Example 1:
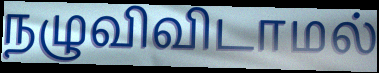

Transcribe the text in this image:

நழுவிவிடாமல்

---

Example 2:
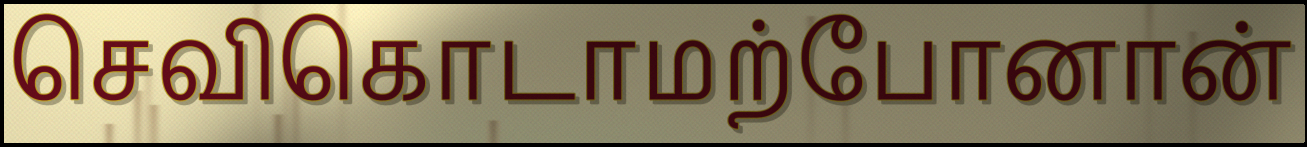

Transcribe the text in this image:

செவிகொடாமற்போனான்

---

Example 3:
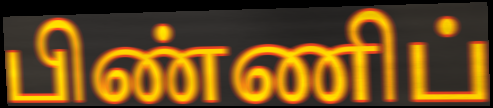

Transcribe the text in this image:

பிண்ணிப்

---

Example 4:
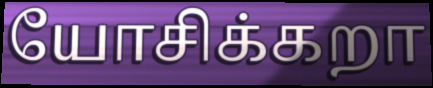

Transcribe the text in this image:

யோசிக்கறா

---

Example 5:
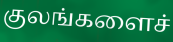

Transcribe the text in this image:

குலங்களைச்